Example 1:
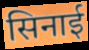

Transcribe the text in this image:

सिनाई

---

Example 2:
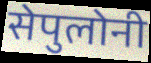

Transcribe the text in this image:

सेपुलोनी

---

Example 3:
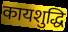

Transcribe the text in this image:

कायशुद्धि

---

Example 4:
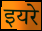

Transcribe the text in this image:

इयरे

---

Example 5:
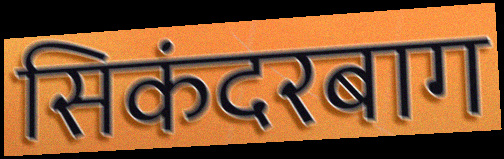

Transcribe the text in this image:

सिकंदरबाग